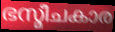
ഭസ്മീചകാര